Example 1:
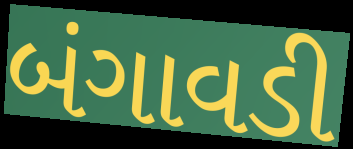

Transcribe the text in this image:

બંગાવડી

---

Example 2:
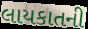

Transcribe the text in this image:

લાયકાતની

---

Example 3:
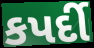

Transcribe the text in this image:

કપર્દી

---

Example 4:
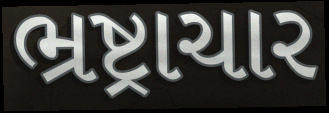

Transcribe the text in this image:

ભ્રષ્ટ્રાચાર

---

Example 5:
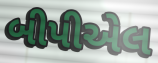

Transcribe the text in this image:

બીપીએલ